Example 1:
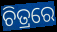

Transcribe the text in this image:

ଚିତ୍ରରେ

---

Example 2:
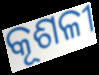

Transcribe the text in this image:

କୂଶଳୀ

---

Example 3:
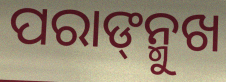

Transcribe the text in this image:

ପରାଙ୍‌ନ୍ମୁଖ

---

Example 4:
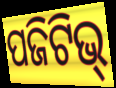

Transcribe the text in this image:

ପଜିଟିଭ୍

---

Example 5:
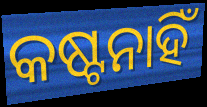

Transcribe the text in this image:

କଷ୍ଟନାହିଁ